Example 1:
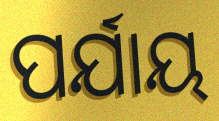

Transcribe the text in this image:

ପର୍ଯାୟ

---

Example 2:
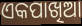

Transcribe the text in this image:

ଏକପାଖିଆ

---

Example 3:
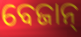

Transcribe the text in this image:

ବେଜାନ୍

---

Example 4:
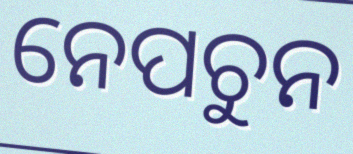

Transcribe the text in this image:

ନେପଚୁନ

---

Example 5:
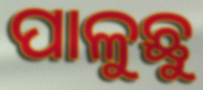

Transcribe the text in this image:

ପାଳୁଛୁ